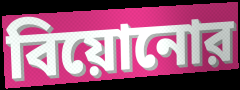
বিয়োনোর